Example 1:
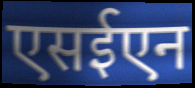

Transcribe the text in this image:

एसईएन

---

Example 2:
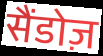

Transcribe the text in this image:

सैंडोज़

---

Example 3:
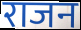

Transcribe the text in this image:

राजन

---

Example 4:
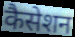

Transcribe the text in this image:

कैसेशन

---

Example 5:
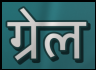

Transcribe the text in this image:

ग्रेल